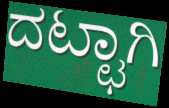
ದಟ್ಟಾಗಿ